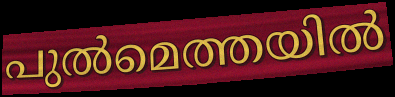
പുൽമെത്തയിൽ